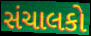
સંચાલકો